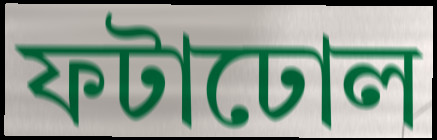
ফটাঢোল